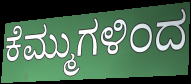
ಕೆಮ್ಮುಗಳಿಂದ